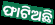
ଫାଟିଅଛି